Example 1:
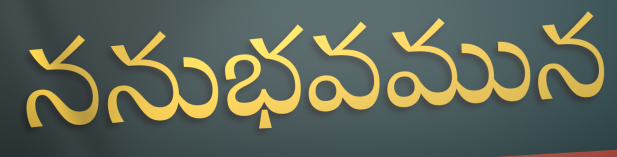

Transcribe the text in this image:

ననుభవమున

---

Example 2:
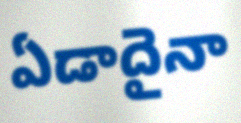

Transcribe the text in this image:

ఏడాదైనా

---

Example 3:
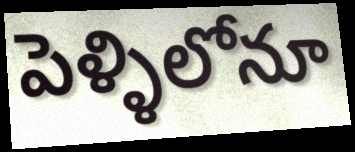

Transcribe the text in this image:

పెళ్ళిలోనూ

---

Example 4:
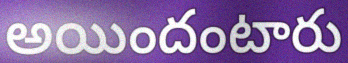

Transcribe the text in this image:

అయిందంటారు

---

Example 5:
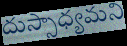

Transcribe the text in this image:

దుస్సాధ్యమని